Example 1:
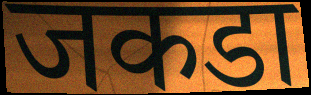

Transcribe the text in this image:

जकडा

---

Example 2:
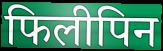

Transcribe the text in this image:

फिलीपिन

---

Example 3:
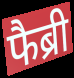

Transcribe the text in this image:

फैब्री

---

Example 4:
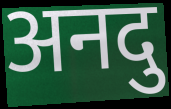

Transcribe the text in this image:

अनदु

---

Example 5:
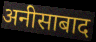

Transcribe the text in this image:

अनीसाबाद